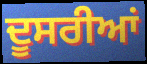
ਦੂਸਰੀਆਂ